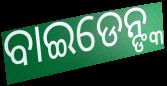
ବାଇଡେନ୍ଙ୍କ